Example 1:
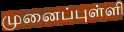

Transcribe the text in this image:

முனைப்புள்ளி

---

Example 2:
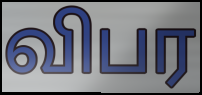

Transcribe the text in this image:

விபர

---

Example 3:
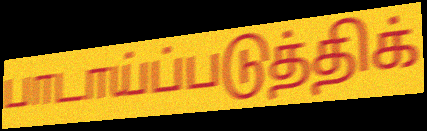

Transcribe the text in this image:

பாடாய்ப்படுத்திக்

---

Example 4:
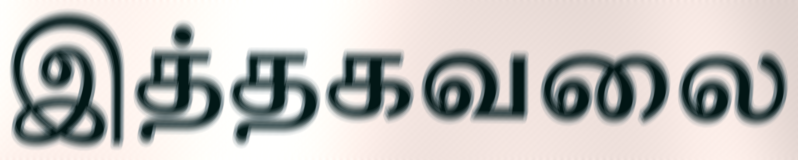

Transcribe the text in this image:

இத்தகவலை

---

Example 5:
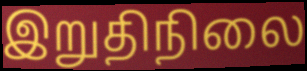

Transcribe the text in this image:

இறுதிநிலை